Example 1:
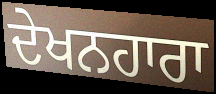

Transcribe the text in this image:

ਦੇਖਨਹਾਰਾ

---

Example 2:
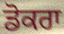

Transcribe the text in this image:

ਡੋਕਰਾ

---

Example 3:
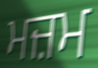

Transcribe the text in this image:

ਮਜ਼ਮ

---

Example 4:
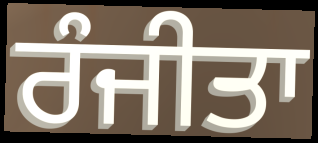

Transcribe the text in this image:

ਰੰਜੀਤਾ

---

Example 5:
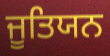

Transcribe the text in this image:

ਜੂਤਿਯਨ